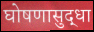
घोषणासुद्धा